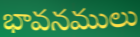
భావనములు